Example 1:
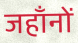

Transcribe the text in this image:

जहाँनों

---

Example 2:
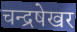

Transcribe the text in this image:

चन्द्रषेखर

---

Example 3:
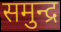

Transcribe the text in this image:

समुन्द्र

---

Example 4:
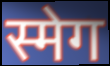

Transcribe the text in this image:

स्मेग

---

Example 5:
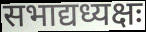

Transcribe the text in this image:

सभाद्यध्यक्षः